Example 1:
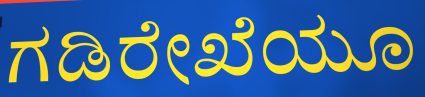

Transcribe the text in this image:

ಗಡಿರೇಖೆಯೂ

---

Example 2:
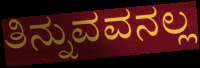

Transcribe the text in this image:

ತಿನ್ನುವವನಲ್ಲ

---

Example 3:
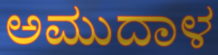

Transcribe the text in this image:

ಅಮುದಾಳ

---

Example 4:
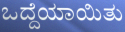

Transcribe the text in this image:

ಒದ್ದೆಯಾಯಿತು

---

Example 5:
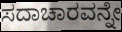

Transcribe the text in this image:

ಸದಾಚಾರವನ್ನೇ